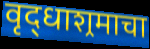
वृद्धाश्रमाचा